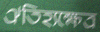
ঐতিহ্যক্ষেত্ৰ